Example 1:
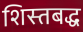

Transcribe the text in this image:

शिस्तबद्ध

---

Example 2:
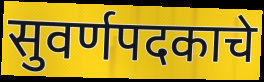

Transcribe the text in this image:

सुवर्णपदकाचे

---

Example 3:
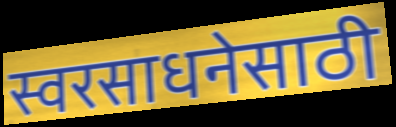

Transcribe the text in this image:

स्वरसाधनेसाठी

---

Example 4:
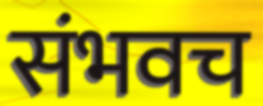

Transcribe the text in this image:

संभवच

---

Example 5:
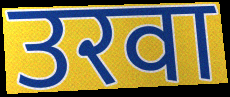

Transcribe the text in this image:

उरवा